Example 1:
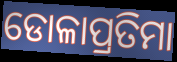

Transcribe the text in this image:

ଡୋଳାପ୍ରତିମା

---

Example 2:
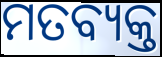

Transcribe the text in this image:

ମତବ୍ୟକ୍ତ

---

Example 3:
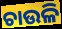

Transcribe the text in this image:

ଚାଉଳି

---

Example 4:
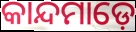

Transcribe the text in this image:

କାନ୍ଦମାଡ଼େ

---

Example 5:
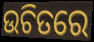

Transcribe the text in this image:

ଉଚିତରେ